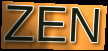
ZEN